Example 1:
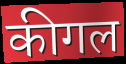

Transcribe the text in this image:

कीगल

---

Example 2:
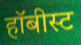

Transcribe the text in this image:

हॉबीस्ट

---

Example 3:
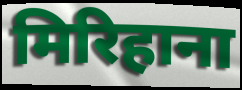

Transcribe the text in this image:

मिरिहाना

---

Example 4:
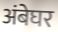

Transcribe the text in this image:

अंबेघर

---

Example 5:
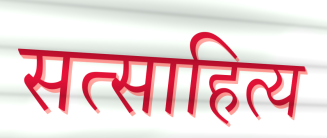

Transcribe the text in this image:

सत्साहित्य